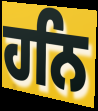
ਹਨਿ